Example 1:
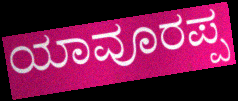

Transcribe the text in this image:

ಯಾವೂರಪ್ಪ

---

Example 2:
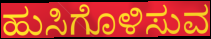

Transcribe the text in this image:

ಹುಸಿಗೊಳಿಸುವ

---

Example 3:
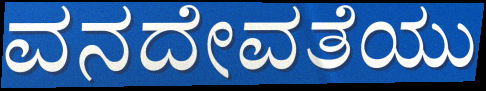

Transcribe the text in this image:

ವನದೇವತೆಯು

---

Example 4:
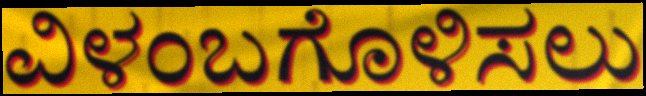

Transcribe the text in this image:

ವಿಳಂಬಗೊಳಿಸಲು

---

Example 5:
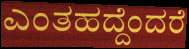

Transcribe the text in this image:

ಎಂತಹದ್ದೆಂದರೆ